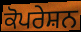
ਕੋਪਰੇਸ਼ਨ